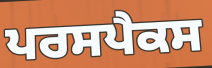
ਪਰਸਪੈਕਸ